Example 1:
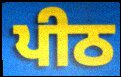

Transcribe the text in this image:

ਪੀਠ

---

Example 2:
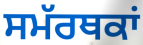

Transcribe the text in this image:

ਸਮੱਰਥਕਾਂ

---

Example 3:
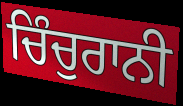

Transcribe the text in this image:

ਚਿੰਚੁਰਾਨੀ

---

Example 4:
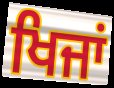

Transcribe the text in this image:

ਖਿਜਾਂ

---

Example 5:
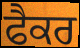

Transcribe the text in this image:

ਫੈਕਰ